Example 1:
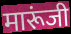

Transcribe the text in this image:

मारूंजी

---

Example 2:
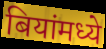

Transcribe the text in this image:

बियांमध्ये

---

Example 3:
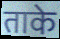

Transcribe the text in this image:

ताके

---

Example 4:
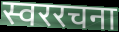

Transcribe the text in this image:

स्वररचना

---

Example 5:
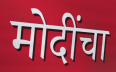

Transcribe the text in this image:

मोदींचा